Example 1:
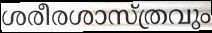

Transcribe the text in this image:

ശരീരശാസ്ത്രവും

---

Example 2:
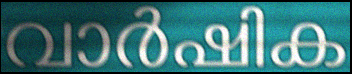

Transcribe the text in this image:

വാർഷിക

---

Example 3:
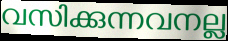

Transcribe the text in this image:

വസിക്കുന്നവനല്ല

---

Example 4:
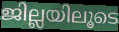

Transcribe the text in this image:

ജില്ലയിലൂടെ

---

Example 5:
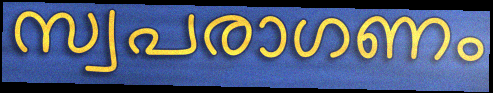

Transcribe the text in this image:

സ്വപരാഗണം